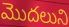
మొదలుని